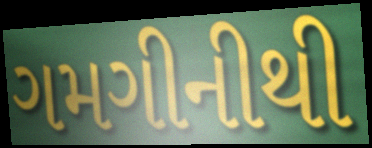
ગમગીનીથી